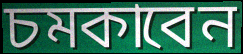
চমকাবেন